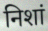
निशां